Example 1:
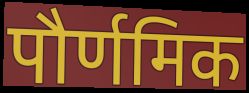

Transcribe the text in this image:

पौर्णमिक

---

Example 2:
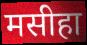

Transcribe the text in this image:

मसीहा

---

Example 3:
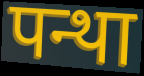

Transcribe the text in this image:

पन्‍था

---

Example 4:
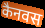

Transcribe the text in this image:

कैनवस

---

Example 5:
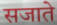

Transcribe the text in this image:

सजाते